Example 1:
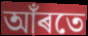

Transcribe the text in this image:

আঁৰতে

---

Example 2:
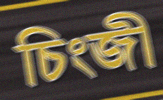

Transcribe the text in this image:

চিংজী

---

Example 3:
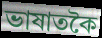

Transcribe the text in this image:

ভাষাতকৈ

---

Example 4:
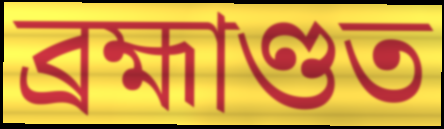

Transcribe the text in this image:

ব্ৰহ্মাণ্ডত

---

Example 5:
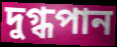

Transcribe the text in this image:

দুগ্ধপান